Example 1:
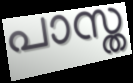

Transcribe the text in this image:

പാസ്ത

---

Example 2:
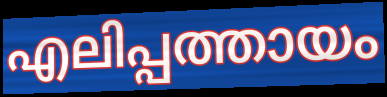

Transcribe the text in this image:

എലിപ്പത്തായം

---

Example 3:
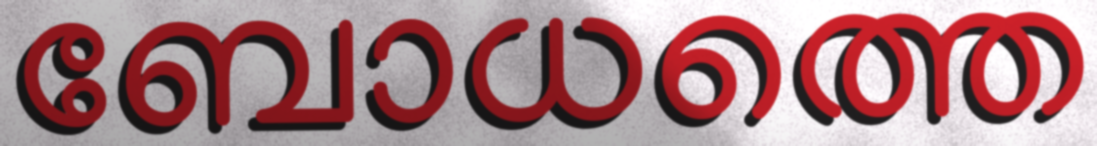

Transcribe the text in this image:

ബോധത്തെ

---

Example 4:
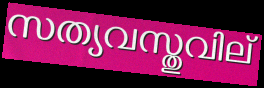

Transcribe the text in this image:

സത്യവസ്തുവില്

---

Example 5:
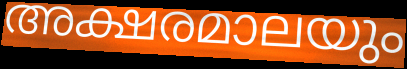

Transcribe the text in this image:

അക്ഷരമാലയും